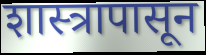
शास्त्रापासून